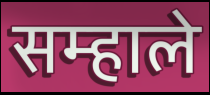
सम्हाले